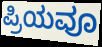
ಪ್ರಿಯವೂ